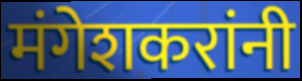
मंगेशकरांनी